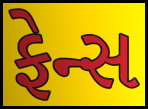
ફેન્સ